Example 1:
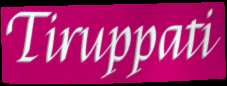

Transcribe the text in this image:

Tiruppati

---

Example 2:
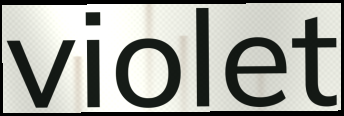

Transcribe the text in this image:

violet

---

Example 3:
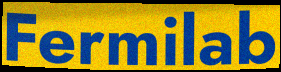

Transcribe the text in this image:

Fermilab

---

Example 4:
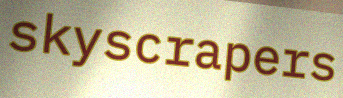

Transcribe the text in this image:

skyscrapers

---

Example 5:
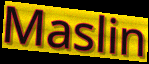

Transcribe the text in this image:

Maslin